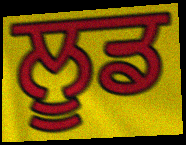
ਲੂਡ